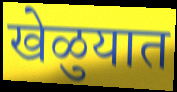
खेळुयात